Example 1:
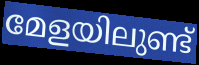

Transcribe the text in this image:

മേളയിലുണ്ട്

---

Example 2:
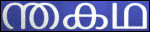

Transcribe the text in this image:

ന്തകഥ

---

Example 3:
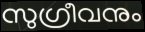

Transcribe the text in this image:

സുഗ്രീവനും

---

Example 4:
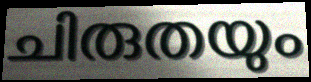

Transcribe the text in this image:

ചിരുതയും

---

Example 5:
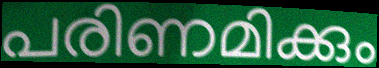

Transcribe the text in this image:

പരിണമിക്കും